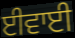
ਈਵਾਈ